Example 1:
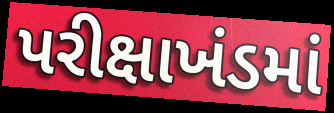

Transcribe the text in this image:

પરીક્ષાખંડમાં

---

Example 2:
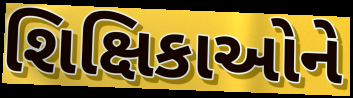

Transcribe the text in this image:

શિક્ષિકાઓને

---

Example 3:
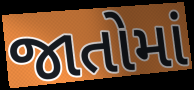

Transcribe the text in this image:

જાતોમાં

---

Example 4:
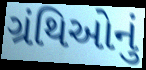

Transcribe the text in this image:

ગ્રંથિઓનું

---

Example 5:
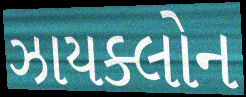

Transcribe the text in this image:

ઝાયક્લોન